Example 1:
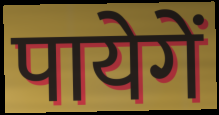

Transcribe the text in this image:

पायेगें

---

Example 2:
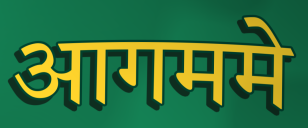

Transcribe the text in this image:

आगममे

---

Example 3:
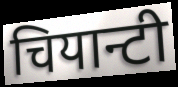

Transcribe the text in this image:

चियान्टी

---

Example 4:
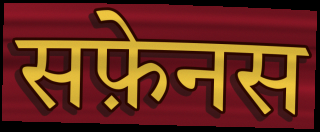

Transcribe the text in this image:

सफ़ेनस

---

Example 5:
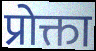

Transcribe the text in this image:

प्रोक्ता